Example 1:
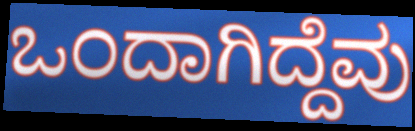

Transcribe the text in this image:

ಒಂದಾಗಿದ್ದೆವು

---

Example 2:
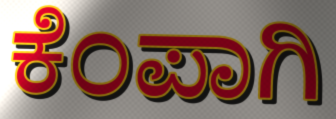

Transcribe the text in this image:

ಕೆಂಪಾಗಿ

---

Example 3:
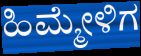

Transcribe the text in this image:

ಹಿಮ್ಮೇಳಿಗ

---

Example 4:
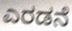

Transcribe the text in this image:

ಎರಡನೆ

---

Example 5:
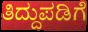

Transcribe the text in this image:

ತಿದ್ದುಪಡಿಗೆ